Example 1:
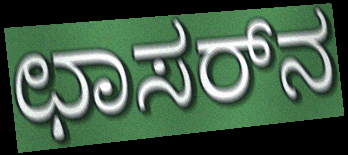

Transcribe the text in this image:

ಛಾಸರ್‌ನ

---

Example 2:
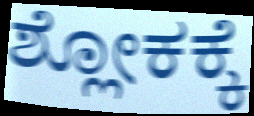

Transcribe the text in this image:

ಶ್ಲೋಕಕ್ಕೆ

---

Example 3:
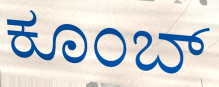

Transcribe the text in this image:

ಕೂಂಬ್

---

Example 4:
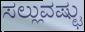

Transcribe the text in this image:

ಸಲ್ಲುವಷ್ಟು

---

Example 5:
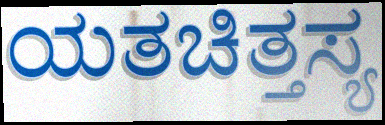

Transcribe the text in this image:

ಯತಚಿತ್ತಸ್ಯ